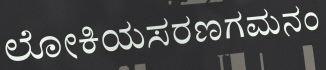
ಲೋಕಿಯಸರಣಗಮನಂ